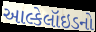
આલ્કેલૉઇડનો